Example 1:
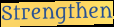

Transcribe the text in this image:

Strengthen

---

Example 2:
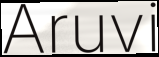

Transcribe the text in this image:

Aruvi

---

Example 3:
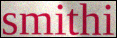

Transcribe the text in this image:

smithi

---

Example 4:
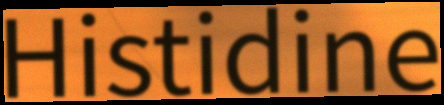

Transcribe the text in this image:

Histidine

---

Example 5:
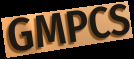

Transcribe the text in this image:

GMPCS